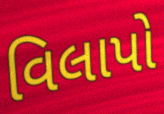
વિલાપો